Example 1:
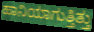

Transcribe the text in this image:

ಹಾನಿಯಾಗುತ್ತಿತ್ತು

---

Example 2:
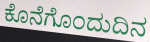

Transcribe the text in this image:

ಕೊನೆಗೊಂದುದಿನ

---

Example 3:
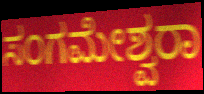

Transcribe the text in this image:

ಸಂಗಮೇಶ್ವರಾ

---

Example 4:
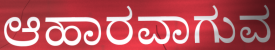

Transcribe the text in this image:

ಆಹಾರವಾಗುವ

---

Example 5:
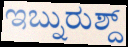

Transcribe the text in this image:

ಇಬ್ನುರುಶ್ದ್